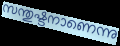
സന്തുഷ്ടനാണെന്നു